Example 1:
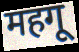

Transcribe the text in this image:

महगू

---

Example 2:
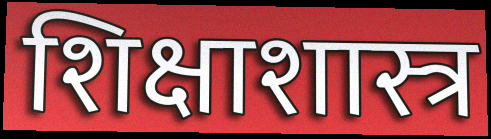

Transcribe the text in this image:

शिक्षाशास्त्र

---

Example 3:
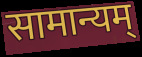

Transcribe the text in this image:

सामान्यम्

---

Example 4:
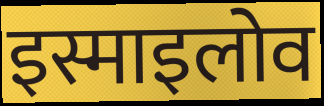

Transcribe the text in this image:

इस्माइलोव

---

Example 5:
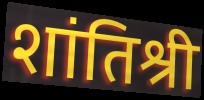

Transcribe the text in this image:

शांतिश्री